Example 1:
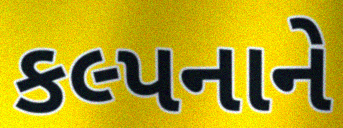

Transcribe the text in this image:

કલ્પનાને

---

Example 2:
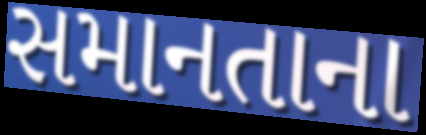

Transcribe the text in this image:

સમાનતાના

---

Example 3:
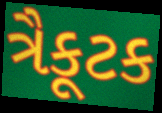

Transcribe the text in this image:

ત્રૈકૂટક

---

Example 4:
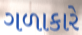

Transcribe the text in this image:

ગળાકારે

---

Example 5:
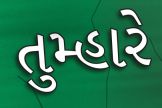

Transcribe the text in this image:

તુમ્હારે